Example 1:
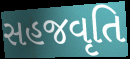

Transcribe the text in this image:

સહજવૃતિ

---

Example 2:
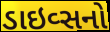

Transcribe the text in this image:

ડાઇવ્સનો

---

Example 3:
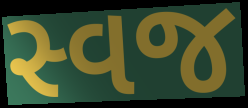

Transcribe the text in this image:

સ્વજ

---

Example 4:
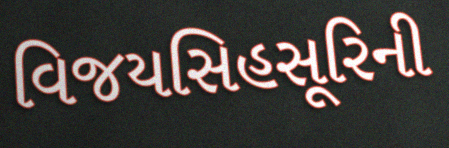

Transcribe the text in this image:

વિજયસિહસૂરિની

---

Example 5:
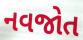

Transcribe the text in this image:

નવજોત